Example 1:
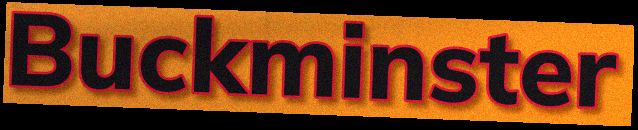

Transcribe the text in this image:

Buckminster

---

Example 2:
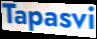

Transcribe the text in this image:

Tapasvi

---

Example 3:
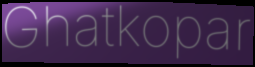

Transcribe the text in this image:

Ghatkopar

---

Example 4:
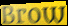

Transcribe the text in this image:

Brow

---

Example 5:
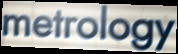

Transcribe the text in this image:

metrology